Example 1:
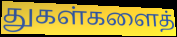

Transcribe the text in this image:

துகள்களைத்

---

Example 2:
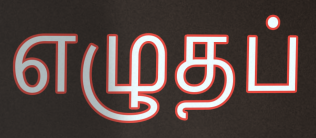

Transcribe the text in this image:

எழுதப்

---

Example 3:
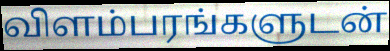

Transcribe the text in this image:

விளம்பரங்களுடன்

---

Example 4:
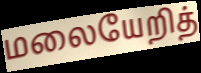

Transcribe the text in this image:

மலையேறித்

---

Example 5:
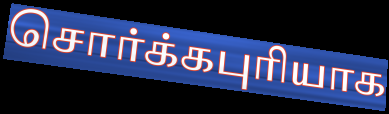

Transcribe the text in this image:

சொர்க்கபுரியாக